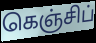
கெஞ்சிப்